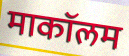
माकॉलम